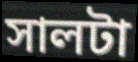
সালটা